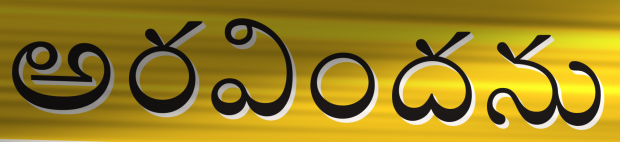
అరవిందను